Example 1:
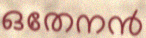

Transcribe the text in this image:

ഒതേനൻ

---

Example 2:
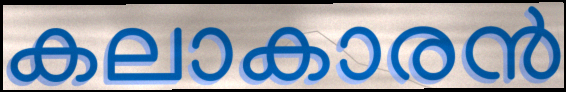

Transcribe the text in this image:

കലാകാരൻ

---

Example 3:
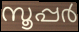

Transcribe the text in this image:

സൂപ്പർ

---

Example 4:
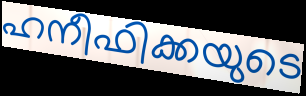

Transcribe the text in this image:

ഹനീഫിക്കയുടെ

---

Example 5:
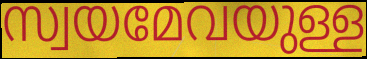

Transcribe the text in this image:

സ്വയമേവയുള്ള